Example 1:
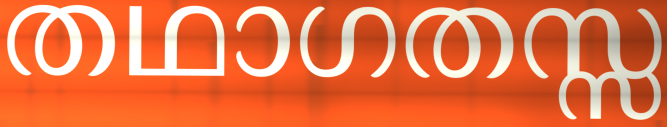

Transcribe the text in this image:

തഥാഗതസ്സ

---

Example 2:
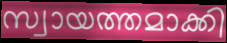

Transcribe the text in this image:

സ്വായത്തമാക്കി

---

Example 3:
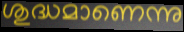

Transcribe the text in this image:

ശുദ്ധമാണെന്നു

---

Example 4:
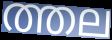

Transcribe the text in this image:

ത്തല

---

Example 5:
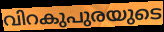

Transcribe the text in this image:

വിറകുപുരയുടെ